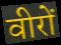
वीरों